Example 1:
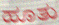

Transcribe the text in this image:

ಹೂತು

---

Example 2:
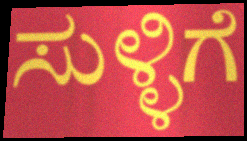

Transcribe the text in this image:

ಸುಳ್ಳಿಗೆ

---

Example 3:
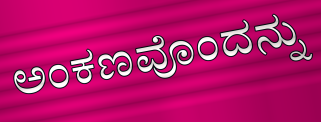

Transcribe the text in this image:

ಅಂಕಣವೊಂದನ್ನು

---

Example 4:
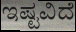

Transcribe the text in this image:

ಇಷ್ಟವಿದೆ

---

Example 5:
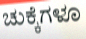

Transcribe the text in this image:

ಚುಕ್ಕೆಗಳೂ